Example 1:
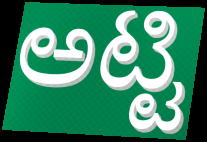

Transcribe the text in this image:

ಅಟ್ಟಿ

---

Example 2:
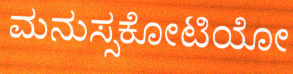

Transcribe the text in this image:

ಮನುಸ್ಸಕೋಟಿಯೋ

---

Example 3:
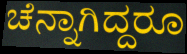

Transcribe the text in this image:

ಚೆನ್ನಾಗಿದ್ದರೂ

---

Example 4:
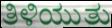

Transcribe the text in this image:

ತಿಳಿಯುತು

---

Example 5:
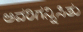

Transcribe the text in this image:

ಅವರಿಗನ್ನಿಸಿತು